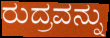
ರುದ್ರವನ್ನು